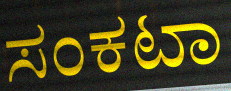
ಸಂಕಟಾ